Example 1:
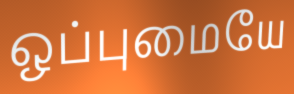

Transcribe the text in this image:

ஒப்புமையே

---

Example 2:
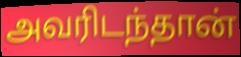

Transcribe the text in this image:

அவரிடந்தான்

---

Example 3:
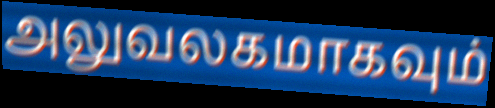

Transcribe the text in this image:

அலுவலகமாகவும்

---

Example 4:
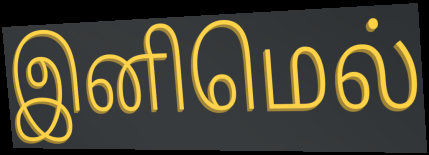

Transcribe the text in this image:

இனிமெல்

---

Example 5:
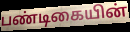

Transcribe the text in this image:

பண்டிகையின்